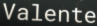
Valente